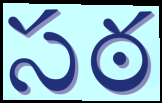
సఠ